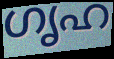
ഗൃഹ